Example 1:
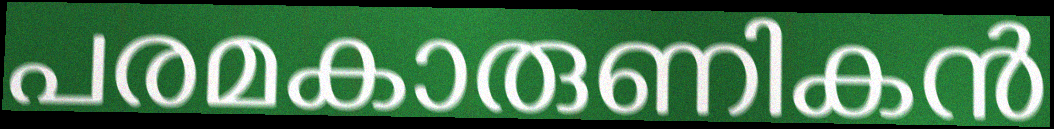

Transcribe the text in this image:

പരമകാരുണികൻ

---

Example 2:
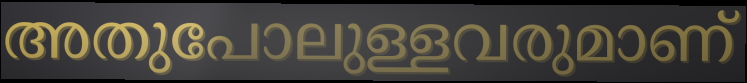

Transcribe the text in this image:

അതുപോലുള്ളവരുമാണ്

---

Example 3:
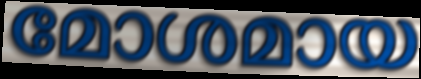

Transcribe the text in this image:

മോശമായ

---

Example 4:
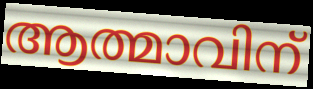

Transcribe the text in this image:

ആത്മാവിന്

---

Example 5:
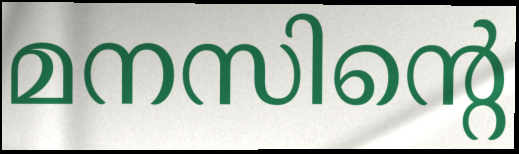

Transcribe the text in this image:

മനസിന്റെ